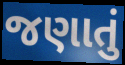
જણાતું